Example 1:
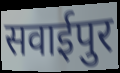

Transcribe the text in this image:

सवाईपुर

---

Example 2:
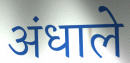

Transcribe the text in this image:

अंधाले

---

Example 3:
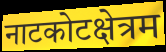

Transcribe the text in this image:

नाटकोटक्षेत्रम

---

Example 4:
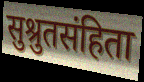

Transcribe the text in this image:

सुश्रुतसंहिता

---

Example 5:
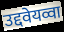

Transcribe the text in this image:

उद्दवेयव्वा